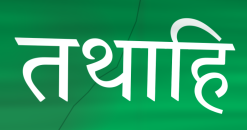
तथाहि